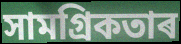
সামগ্ৰিকতাৰ